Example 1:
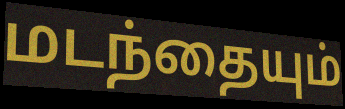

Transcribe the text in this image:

மடந்தையும்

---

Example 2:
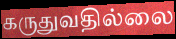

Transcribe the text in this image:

கருதுவதில்லை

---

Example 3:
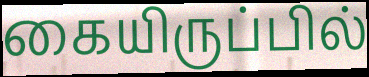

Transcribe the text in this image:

கையிருப்பில்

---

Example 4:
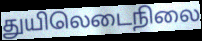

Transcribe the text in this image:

துயிலெடைநிலை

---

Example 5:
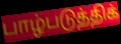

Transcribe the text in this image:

பாழ்படுத்திக்